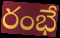
రంభే